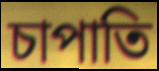
চাপাতি